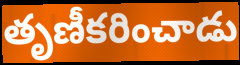
తృణీకరించాడు